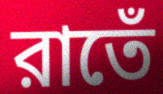
রাতেঁ